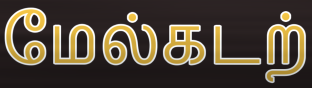
மேல்கடற்